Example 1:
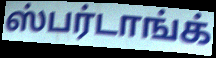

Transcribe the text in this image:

ஸ்பர்டாங்க்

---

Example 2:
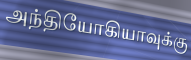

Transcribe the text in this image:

அந்தியோகியாவுக்கு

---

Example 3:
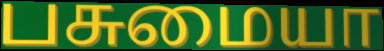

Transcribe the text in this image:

பசுமையா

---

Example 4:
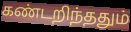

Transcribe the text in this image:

கண்டறிந்ததும்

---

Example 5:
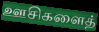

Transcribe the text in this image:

ஊசிகளைத்